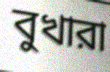
বুখারা